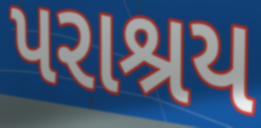
પરાશ્રય